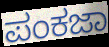
ಪಂಕಜಾ